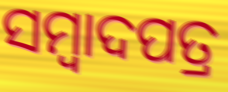
ସମ୍ବାଦପତ୍ର